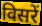
विसरें